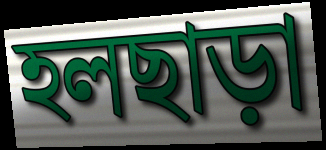
হলছাড়া